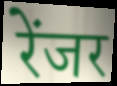
रेंजर